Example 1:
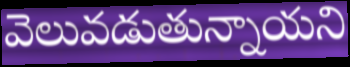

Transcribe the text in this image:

వెలువడుతున్నాయని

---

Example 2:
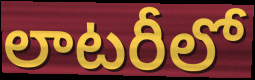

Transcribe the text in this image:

లాటరీలో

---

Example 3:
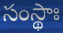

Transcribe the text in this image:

సంస్థాః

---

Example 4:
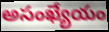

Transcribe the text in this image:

అసంఖ్యేయం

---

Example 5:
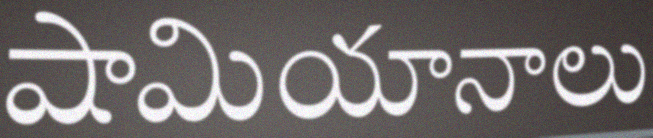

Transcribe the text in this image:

షామియానాలు